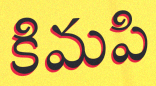
కిమపి